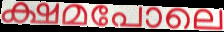
ക്ഷമപോലെ